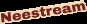
Neestream